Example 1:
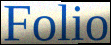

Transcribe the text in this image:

Folio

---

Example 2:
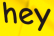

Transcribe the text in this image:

hey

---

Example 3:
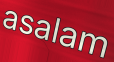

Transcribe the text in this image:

asalam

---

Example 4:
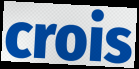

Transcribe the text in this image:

crois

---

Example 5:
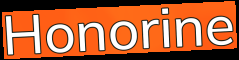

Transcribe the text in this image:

Honorine